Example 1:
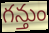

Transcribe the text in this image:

గన్తుం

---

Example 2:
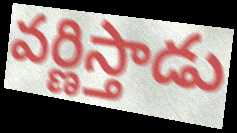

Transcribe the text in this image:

వర్ణిస్తాడు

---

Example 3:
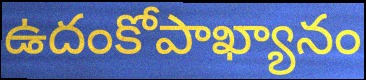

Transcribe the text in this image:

ఉదంకోపాఖ్యానం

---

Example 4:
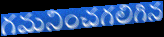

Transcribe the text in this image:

గమనించగలిగిన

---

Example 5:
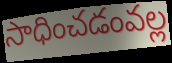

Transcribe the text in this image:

సాధించడంవల్ల